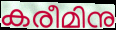
കരീമിനു